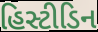
હિસ્ટીડિન